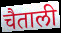
चैताली